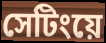
সেটিংয়ে